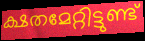
ക്ഷതമേറ്റിട്ടുണ്ട്